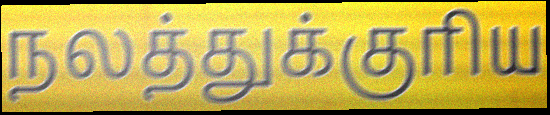
நலத்துக்குரிய